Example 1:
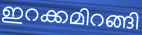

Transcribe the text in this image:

ഇറക്കമിറങ്ങി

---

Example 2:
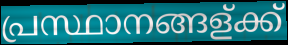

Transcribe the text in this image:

പ്രസ്ഥാനങ്ങള്ക്ക്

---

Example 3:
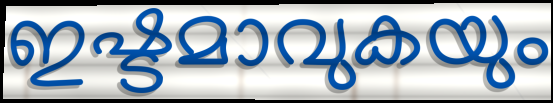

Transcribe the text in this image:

ഇഷ്ടമാവുകയും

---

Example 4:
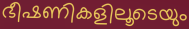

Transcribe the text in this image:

ഭീഷണികളിലൂടെയും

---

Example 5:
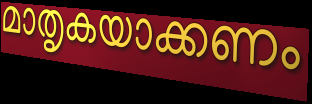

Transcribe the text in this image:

മാതൃകയാക്കണം